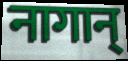
नागान्